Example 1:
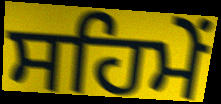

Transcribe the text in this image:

ਸਹਿਮੇਂ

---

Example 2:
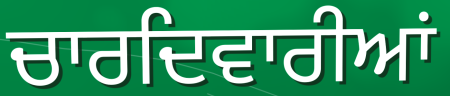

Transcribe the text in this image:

ਚਾਰਦਿਵਾਰੀਆਂ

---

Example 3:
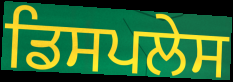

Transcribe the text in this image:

ਡਿਸਪਲੇਸ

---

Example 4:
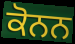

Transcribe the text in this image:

ਕੋਨਨ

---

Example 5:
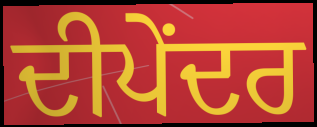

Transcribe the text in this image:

ਦੀਪੇਂਦਰ